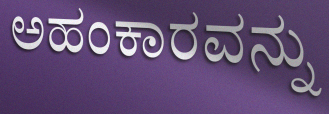
ಅಹಂಕಾರವನ್ನು